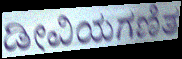
ಡೀವಿಯಗಣಿತ